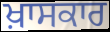
ਖ਼ਾਸਕਾਰ